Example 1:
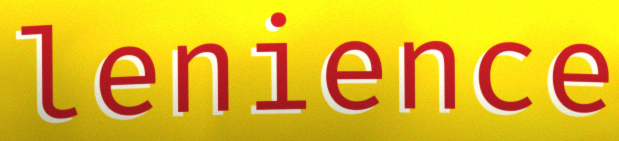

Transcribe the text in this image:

lenience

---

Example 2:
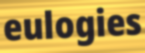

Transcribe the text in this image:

eulogies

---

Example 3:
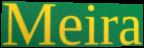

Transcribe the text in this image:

Meira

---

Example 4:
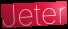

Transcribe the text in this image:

Jeter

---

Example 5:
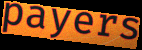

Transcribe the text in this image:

payers